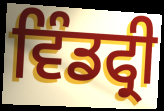
ਵਿੰਡਫ੍ਰੀ